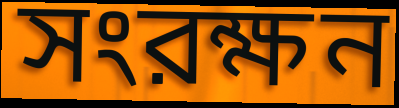
সংরক্ষন